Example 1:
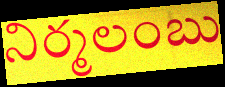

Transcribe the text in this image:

నిర్మలంబు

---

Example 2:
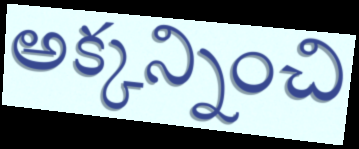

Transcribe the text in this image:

అక్కన్నించి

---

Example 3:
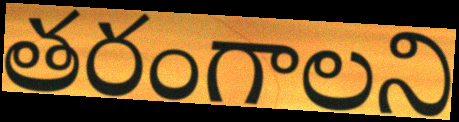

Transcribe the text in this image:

తరంగాలని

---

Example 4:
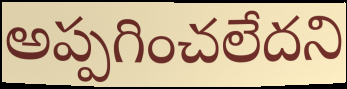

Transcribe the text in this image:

అప్పగించలేదని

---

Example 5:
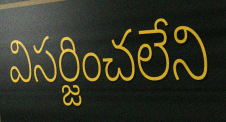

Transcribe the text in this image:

విసర్జించలేని